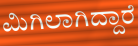
ಮಿಗಿಲಾಗಿದ್ದಾರೆ